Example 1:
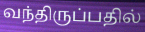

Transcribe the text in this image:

வந்திருப்பதில்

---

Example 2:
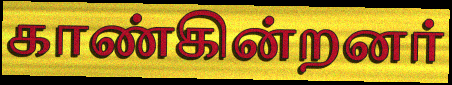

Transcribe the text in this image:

காண்கின்றனர்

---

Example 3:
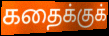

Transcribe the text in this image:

கதைக்குக்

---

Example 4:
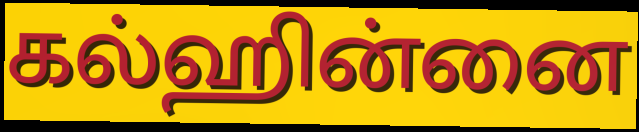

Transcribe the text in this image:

கல்ஹின்னை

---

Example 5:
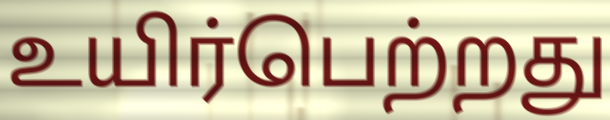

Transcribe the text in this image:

உயிர்பெற்றது